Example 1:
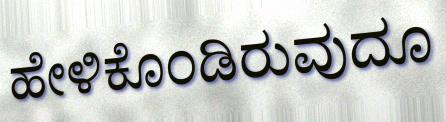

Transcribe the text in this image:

ಹೇಳಿಕೊಂಡಿರುವುದೂ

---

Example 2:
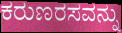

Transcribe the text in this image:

ಕರುಣರಸವನ್ನು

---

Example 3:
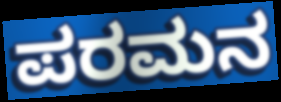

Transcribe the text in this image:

ಪರಮನ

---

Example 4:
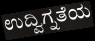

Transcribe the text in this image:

ಉದ್ವಿಗ್ನತೆಯ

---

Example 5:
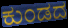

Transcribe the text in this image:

ಕುಂಡದ